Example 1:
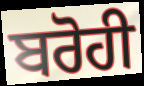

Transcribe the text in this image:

ਬਰੋਹੀ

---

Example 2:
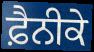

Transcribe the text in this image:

ਫ਼ੈਨੀਕੇ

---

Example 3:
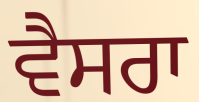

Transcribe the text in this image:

ਵੈਸਰਾ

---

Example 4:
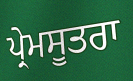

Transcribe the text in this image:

ਪ੍ਰੇਮਸੂਤਰਾ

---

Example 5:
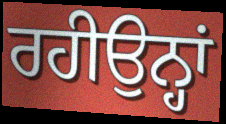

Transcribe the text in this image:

ਰਹੀਉਨ੍ਹਾਂ